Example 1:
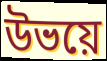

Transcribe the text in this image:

উভয়ে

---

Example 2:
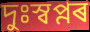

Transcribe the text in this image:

দুঃস্বপ্নৰ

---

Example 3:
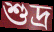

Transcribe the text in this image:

শুদ্ৰ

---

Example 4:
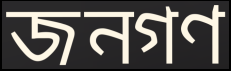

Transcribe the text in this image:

জনগণ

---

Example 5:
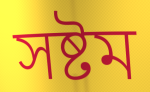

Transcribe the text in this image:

সষ্টম